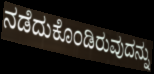
ನಡೆದುಕೊಂಡಿರುವುದನ್ನು